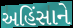
અહિંસાને